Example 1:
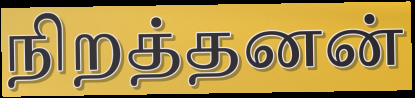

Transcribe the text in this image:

நிறத்தனன்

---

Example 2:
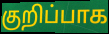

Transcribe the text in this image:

குறிப்பாக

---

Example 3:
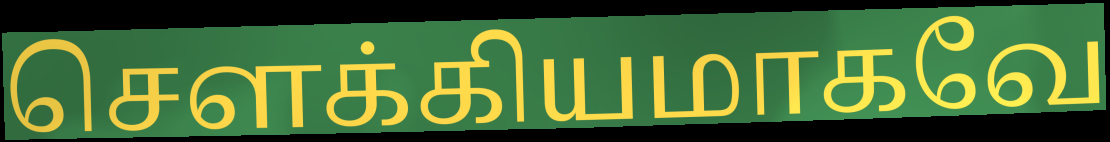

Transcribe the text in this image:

சௌக்கியமாகவே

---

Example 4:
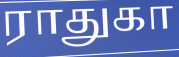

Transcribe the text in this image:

ராதுகா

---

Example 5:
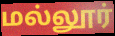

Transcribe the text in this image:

மல்லூர்